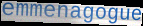
emmenagogue